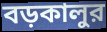
বড়কালুর